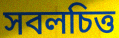
সবলচিত্ত